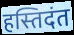
हस्तिदंत